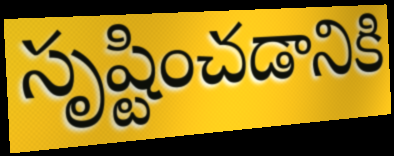
సృష్టించడానికి